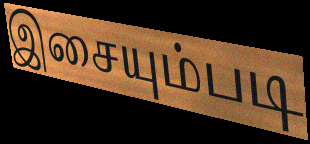
இசையும்படி